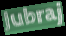
Jubraj